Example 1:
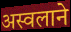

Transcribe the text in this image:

अस्वलाने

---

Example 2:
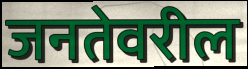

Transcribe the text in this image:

जनतेवरील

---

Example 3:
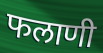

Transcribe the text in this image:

फलाणी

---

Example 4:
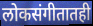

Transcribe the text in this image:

लोकसंगीतातही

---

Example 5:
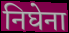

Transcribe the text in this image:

निघेना